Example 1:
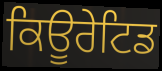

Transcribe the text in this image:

ਕਿਊਰੇਟਿਡ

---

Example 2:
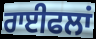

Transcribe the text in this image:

ਰਾਈਫਲਾਂ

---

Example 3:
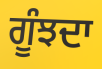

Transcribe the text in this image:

ਗੂੰਝਦਾ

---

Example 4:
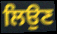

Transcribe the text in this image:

ਲਿਉਣ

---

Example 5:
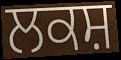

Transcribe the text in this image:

ਲਕਸ਼